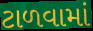
ટાળવામાં